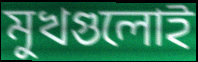
মুখগুলোই